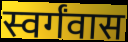
स्वर्गंवास